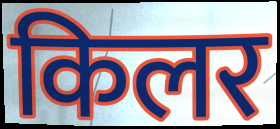
किलर